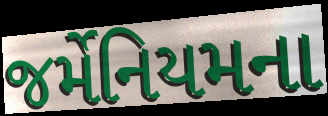
જર્મેનિયમના